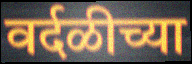
वर्दळीच्या